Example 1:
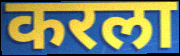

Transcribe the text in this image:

करला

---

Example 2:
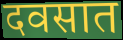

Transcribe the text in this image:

दवसात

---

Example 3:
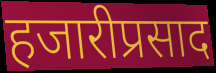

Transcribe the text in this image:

हजारीप्रसाद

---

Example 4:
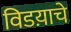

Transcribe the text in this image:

विडय़ाचे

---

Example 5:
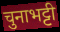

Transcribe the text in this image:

चुनाभट्टी